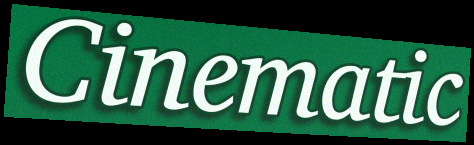
Cinematic